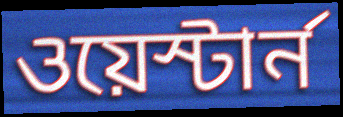
ওয়েস্টার্ন